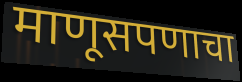
माणूसपणाचा